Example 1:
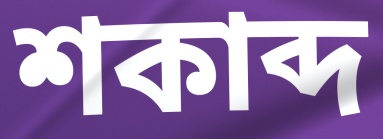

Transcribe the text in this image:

শকাব্দ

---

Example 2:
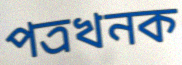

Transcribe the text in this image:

পত্ৰখনক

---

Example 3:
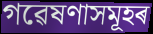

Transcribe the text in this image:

গৱেষণাসমূহৰ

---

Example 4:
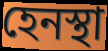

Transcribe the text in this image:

হেনস্থা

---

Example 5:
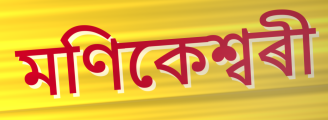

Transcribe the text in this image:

মণিকেশ্বৰী